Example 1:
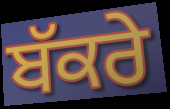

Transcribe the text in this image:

ਬੱਕਰੇ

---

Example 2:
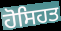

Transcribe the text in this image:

ਹੋਸਿਹਤ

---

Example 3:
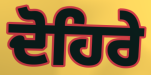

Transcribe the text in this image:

ਦੋਹਿਰੇ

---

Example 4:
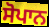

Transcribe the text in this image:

ਸੋਪਾਨ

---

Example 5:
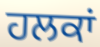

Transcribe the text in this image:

ਹਲਕਾਂ